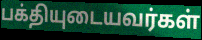
பக்தியுடையவர்கள்